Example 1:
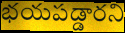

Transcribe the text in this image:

భయపడ్డారని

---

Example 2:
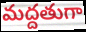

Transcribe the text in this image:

మద్దతుగా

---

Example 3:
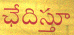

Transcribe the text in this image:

ఛేదిస్తూ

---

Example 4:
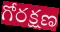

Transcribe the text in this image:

గోరక్షణ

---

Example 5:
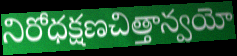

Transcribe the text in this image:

నిరోధక్షణచిత్తాన్వయో